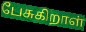
பேசுகிறாள்